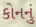
કોનનું